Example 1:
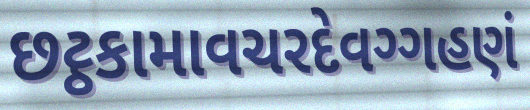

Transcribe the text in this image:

છટ્ઠકામાવચરદેવગ્ગહણં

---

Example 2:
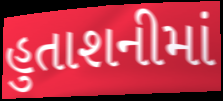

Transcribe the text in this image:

હુતાશનીમાં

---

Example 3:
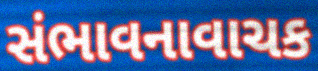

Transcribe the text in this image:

સંભાવનાવાચક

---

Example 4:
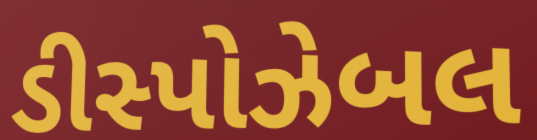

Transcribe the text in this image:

ડીસ્પોઝેબલ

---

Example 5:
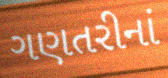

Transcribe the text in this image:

ગણતરીનાં